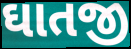
ઘાતજી